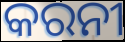
କରନୀ